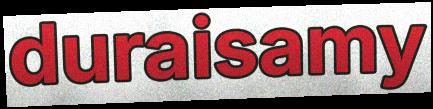
duraisamy